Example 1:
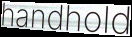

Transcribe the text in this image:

handhold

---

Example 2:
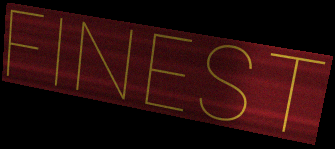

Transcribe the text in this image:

FINEST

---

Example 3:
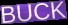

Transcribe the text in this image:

BUCK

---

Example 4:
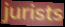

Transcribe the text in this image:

jurists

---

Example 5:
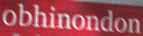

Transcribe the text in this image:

obhinondon